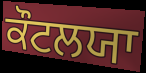
ਕੌਟਲਯਾ